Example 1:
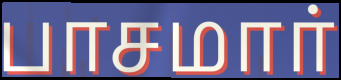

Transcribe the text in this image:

பாசமார்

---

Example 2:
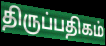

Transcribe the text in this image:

திருப்பதிகம்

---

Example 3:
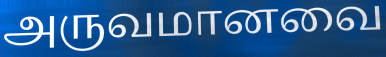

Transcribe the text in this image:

அருவமானவை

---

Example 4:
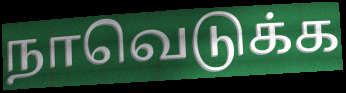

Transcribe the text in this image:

நாவெடுக்க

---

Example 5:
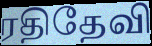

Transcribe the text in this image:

ரதிதேவி